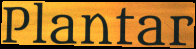
Plantar